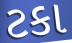
ટકા